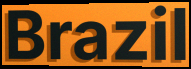
Brazil